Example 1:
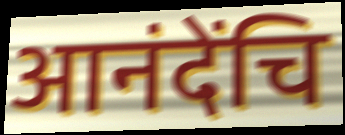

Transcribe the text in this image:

आनंदेंचि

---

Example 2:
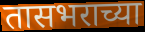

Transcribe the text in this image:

तासभराच्या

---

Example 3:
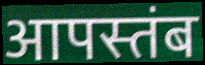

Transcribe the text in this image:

आपस्तंब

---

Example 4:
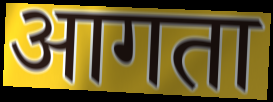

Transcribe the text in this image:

आगता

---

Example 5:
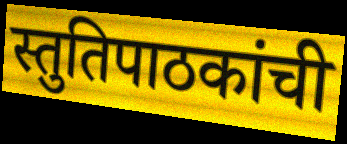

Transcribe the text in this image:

स्तुतिपाठकांची